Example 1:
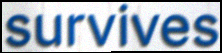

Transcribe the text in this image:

survives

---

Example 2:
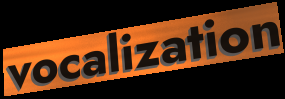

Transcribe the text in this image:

vocalization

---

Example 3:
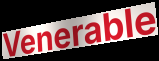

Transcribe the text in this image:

Venerable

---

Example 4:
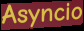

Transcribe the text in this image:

Asyncio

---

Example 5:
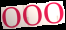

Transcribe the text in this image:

OOO